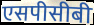
एसपीसीबी